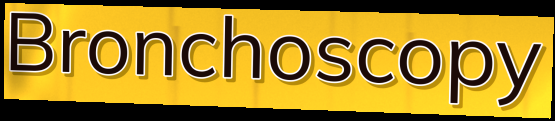
Bronchoscopy